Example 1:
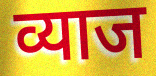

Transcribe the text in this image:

व्याज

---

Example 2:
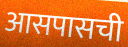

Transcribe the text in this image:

आसपासची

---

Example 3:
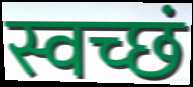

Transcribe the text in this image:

स्वच्छं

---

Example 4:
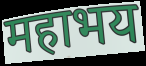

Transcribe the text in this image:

महाभय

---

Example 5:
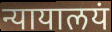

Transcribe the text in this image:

न्यायालयं